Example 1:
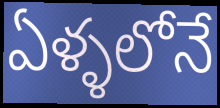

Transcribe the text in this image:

ఏళ్ళలోనే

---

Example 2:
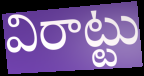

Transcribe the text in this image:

విరాట్టు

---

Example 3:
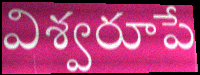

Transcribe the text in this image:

విశ్వరూపే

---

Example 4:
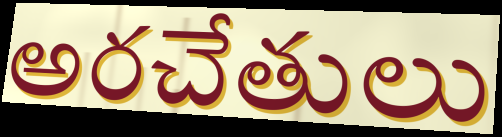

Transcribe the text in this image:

అరచేతులు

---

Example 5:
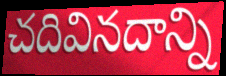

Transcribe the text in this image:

చదివినదాన్ని